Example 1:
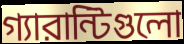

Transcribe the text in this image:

গ্যারান্টিগুলো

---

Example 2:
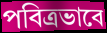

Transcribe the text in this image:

পবিত্রভাবে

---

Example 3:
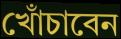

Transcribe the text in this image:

খোঁচাবেন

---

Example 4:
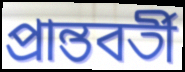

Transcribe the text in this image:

প্রান্তবর্তী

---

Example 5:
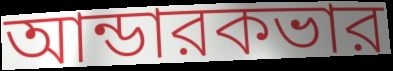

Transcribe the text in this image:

আন্ডারকভার